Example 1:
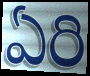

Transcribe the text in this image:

ఏరి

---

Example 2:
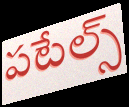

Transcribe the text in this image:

పటేల్స్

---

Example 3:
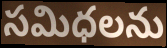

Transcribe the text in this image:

సమిధలను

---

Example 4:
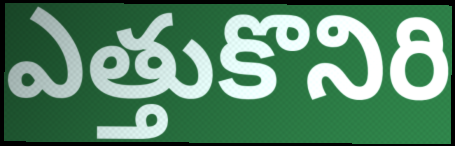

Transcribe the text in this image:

ఎత్తుకొనిరి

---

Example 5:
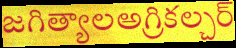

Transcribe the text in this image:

జగిత్యాలఅగ్రికల్చర్